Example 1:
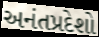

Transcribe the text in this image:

અનંતપ્રદેશો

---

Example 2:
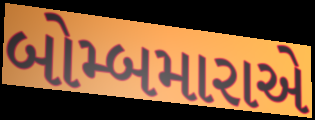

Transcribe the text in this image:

બોમ્બમારાએ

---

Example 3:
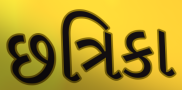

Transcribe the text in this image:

છત્રિકા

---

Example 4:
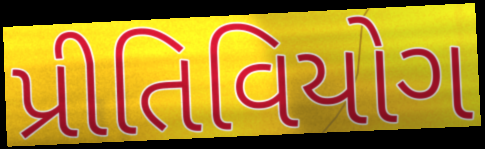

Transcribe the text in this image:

પ્રીતિવિયોગ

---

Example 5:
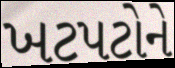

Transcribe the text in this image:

ખટપટોને